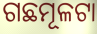
ଗଛମୂଳଟା